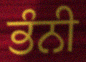
ਭੰਨੀ